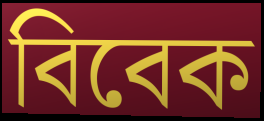
বিবেক